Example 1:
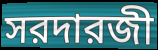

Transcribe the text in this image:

সরদারজী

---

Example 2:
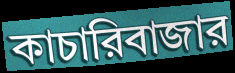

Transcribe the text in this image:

কাচারিবাজার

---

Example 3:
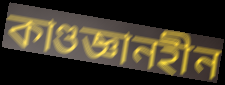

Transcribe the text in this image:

কাণ্ডজ্ঞানহীন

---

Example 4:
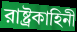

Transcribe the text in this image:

রাষ্ট্রকাহিনী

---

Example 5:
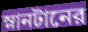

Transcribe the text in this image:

স্নানটানের